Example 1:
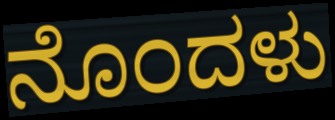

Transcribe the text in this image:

ನೊಂದಳು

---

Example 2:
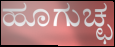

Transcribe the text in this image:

ಹೂಗುಚ್ಛ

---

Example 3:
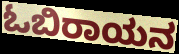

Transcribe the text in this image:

ಓಬಿರಾಯನ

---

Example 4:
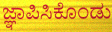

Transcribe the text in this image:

ಜ್ಞಾಪಿಸಿಕೊಂಡು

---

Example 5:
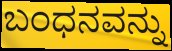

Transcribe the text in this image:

ಬಂಧನವನ್ನು